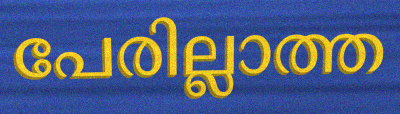
പേരില്ലാത്ത